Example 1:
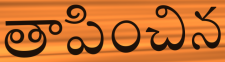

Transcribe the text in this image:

తాపించిన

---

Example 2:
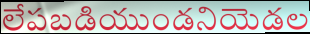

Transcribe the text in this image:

లేపబడియుండనియెడల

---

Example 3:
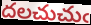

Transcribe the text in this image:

దలచుచుఁ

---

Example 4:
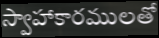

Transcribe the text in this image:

స్వాహాకారములతో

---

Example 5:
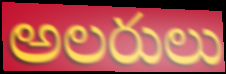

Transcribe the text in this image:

అలరులు